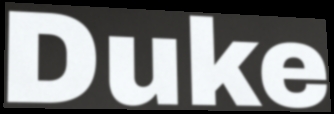
Duke